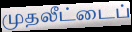
முதலீட்டைப்